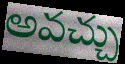
అవచ్చు